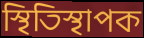
স্থিতিস্থাপক